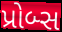
પ્રોબ્સ